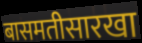
बासमतीसारखा